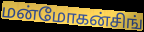
மன்மோகன்சிங்